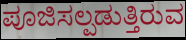
ಪೂಜಿಸಲ್ಪಡುತ್ತಿರುವ